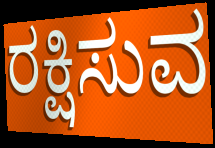
ರಕ್ಷಿಸುವ